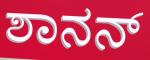
ಶಾನನ್